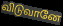
விடுவானே